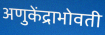
अणुकेंद्राभोवती